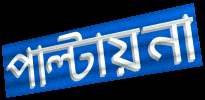
পাল্টায়না